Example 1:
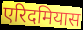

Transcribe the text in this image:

एरिदमियास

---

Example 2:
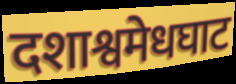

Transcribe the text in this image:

दशाश्वमेधघाट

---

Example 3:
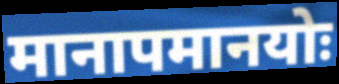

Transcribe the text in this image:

मानापमानयोः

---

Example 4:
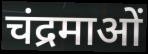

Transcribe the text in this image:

चंद्रमाओं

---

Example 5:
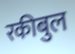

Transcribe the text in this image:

रकीबुल